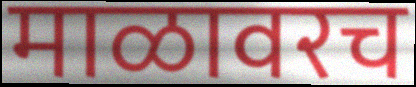
माळावरच